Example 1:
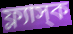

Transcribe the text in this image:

ফ্ল্যাস্‌ক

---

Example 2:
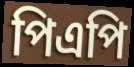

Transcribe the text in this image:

পিএপি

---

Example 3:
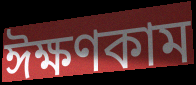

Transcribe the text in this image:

ঈক্ষণকাম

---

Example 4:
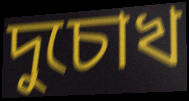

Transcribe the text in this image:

দুচোখ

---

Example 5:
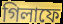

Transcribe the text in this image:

গিলাফে